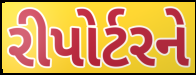
રીપોર્ટરને